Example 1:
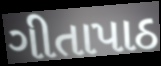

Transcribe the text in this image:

ગીતાપાઠ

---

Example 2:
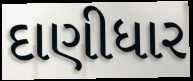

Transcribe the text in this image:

દાણીધાર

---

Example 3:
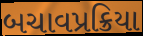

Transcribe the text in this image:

બચાવપ્રક્રિયા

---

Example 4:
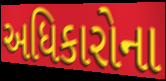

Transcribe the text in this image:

અધિકારોના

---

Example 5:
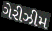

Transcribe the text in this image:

ગેરીઝીમ